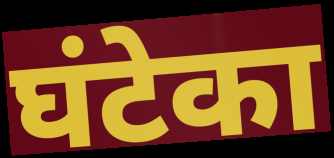
घंटेका